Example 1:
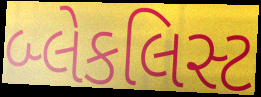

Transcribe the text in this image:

બ્લેકલિસ્ટ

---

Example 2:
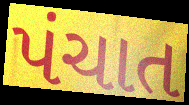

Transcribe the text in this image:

પંચાત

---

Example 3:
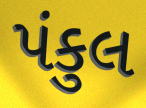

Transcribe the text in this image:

પંકુલ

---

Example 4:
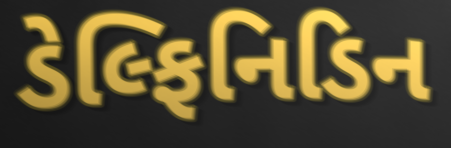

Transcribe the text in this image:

ડેલ્ફિનિડિન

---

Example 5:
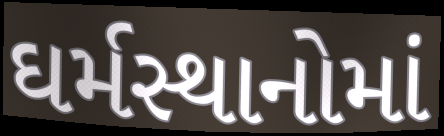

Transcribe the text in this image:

ઘર્મસ્થાનોમાં